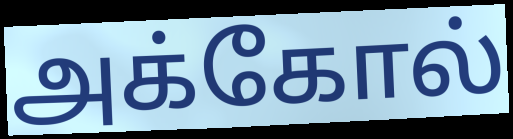
அக்கோல்